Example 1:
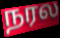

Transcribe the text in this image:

நரல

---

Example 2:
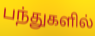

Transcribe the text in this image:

பந்துகளில்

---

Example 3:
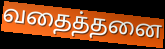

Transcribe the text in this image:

வதைத்தனை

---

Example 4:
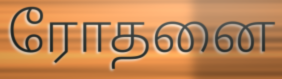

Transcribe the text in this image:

ரோதனை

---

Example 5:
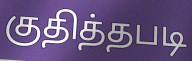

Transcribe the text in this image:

குதித்தபடி